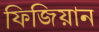
ফিজিয়ান